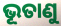
ଭୂତାଣୁ